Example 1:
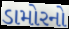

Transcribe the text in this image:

ડામોરનો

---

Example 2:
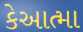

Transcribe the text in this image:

કેઆત્મા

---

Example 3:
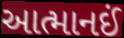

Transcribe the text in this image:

આત્માનઈં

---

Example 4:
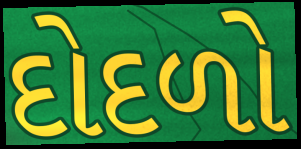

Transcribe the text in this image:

દોદળો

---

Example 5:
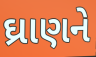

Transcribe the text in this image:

ઘ્રાણને